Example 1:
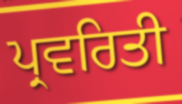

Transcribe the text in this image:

ਪ੍ਰਵਰਿਤੀ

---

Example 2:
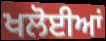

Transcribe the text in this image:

ਖਲੋਈਆਂ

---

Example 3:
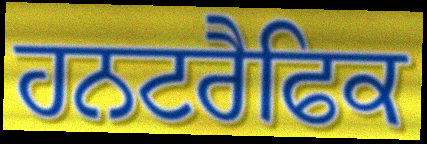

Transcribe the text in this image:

ਹਨਟਰੈਫਿਕ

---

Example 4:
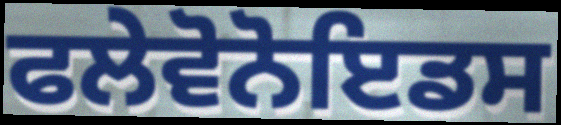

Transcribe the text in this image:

ਫਲੇਵੋਨੋਇਡਸ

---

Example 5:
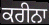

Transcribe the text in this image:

ਕਰੀਨਾ